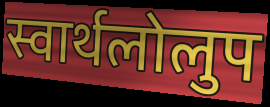
स्वार्थलोलुप